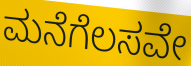
ಮನೆಗೆಲಸವೇ